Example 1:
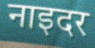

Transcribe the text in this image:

नाइदर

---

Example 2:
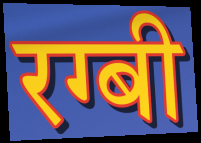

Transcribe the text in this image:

रग्‍बी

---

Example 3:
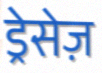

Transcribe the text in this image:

ड्रेसेज़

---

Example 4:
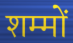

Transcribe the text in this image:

शम्मों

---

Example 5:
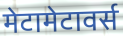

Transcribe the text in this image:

मेटामेटावर्स